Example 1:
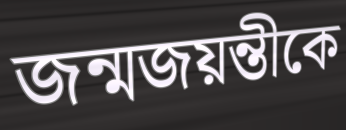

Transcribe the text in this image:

জন্মজয়ন্তীকে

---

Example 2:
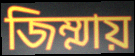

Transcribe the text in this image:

জিম্মায়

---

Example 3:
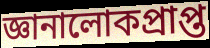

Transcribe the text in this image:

জ্ঞানালোকপ্রাপ্ত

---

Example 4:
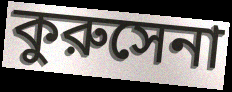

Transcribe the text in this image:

কুরুসেনা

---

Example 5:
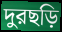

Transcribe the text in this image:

দুরছড়ি